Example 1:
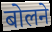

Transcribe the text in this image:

बोलने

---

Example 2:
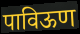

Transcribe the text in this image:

पाविऊण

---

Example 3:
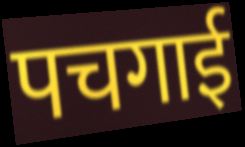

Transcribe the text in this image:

पचगाई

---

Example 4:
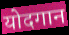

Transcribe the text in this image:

योदगान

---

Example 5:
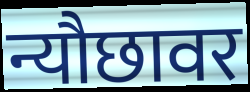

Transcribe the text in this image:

न्यौछावर